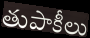
తుపాకీలు